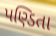
પણ્ડિતા